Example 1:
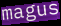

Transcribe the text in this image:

magus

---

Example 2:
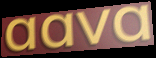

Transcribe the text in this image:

aava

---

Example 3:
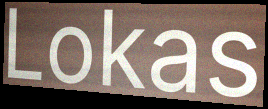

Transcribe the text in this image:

Lokas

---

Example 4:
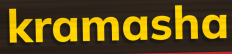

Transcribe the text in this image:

kramasha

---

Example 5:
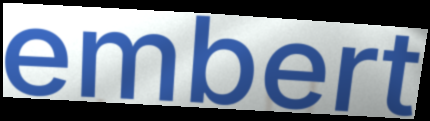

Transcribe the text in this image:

embert